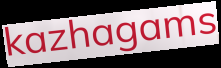
kazhagams